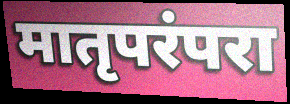
मातृपरंपरा